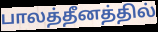
பாலத்தீனத்தில்